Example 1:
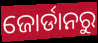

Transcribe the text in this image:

ଜୋର୍ଡାନରୁ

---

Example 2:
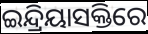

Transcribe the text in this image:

ଇନ୍ଦ୍ରିୟାସକ୍ତିରେ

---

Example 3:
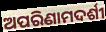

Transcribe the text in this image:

ଅପରିଣାମଦର୍ଶୀ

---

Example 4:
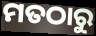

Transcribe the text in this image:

ମତଠାରୁ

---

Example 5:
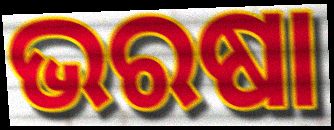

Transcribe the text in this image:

ଭରଷା